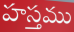
హస్తము